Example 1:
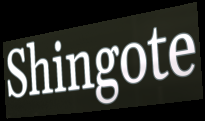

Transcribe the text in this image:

Shingote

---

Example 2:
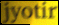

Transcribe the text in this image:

jyotir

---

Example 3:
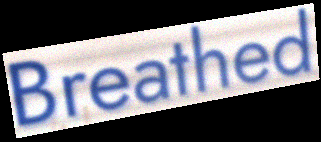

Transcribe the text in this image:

Breathed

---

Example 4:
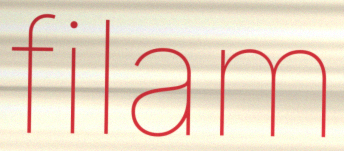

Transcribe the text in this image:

filam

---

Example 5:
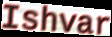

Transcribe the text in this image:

Ishvar